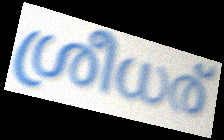
ശ്രീധര്